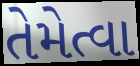
તેમેત્વા